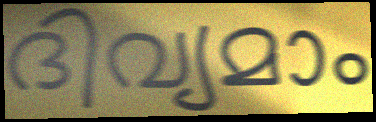
ദിവ്യമാം